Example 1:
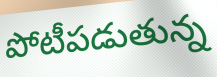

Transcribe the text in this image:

పోటీపడుతున్న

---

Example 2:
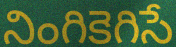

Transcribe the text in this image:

నింగికెగిసే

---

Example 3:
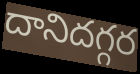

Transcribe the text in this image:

దానిదగ్గర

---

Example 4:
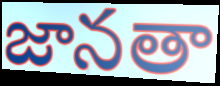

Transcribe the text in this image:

జానతా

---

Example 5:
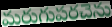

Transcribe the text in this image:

మరుగుపరచెను